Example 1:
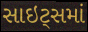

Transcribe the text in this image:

સાઇટ્સમાં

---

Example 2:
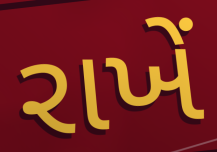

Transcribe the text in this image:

રાખેં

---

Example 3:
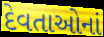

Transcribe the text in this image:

દેવતાઓનાં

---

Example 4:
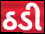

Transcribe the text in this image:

ઠડી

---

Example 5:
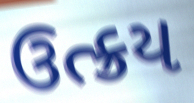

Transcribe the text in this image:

ઉત્ક્રય